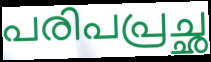
പരിപപ്രച്ഛ